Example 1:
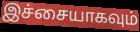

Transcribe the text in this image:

இச்சையாகவும்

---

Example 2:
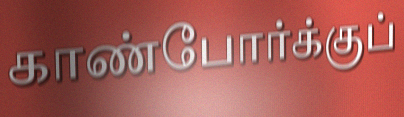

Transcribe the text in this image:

காண்போர்க்குப்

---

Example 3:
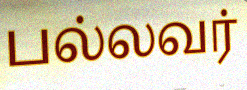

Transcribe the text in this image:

பல்லவர்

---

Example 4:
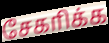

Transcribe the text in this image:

சேகரிக்க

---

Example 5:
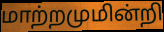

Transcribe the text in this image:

மாற்றமுமின்றி